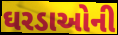
ઘરડાઓની